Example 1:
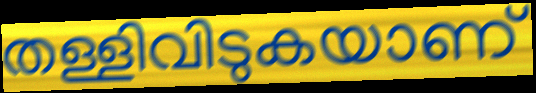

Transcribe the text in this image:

തള്ളിവിടുകയാണ്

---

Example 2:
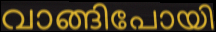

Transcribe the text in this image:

വാങ്ങിപോയി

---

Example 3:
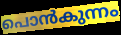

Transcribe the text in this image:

പൊൻകുന്നം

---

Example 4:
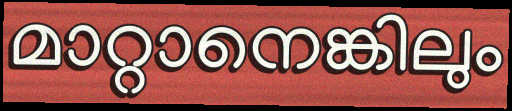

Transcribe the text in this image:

മാറ്റാനെങ്കിലും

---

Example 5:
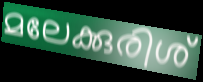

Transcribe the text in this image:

മലേക്കുരിശ്